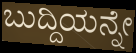
ಬುದ್ದಿಯನ್ನೇ